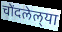
चोंदलेल्या